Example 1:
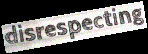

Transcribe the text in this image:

disrespecting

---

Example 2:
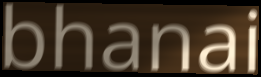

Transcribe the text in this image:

bhanai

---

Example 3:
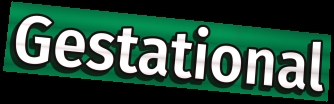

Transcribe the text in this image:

Gestational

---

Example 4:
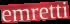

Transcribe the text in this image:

emretti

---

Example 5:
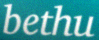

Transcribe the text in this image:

bethu